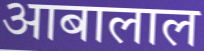
आबालाल